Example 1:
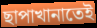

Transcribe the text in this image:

ছাপাখানাতেই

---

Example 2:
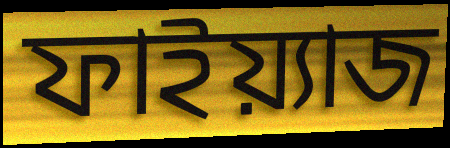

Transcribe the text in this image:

ফাইয়্যাজ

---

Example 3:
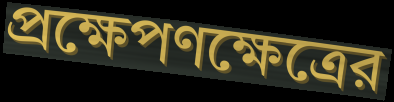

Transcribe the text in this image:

প্রক্ষেপণক্ষেত্রের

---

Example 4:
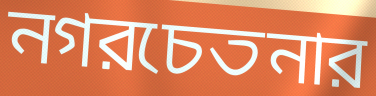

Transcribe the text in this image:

নগরচেতনার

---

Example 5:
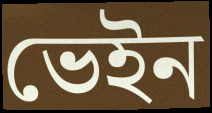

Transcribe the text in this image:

ভেইন